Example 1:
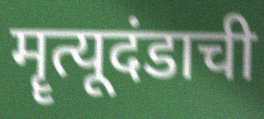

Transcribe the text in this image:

मॄत्यूदंडाची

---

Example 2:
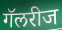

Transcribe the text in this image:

गॅलरीज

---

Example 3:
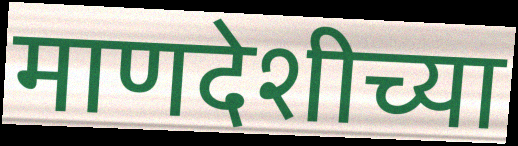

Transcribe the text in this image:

माणदेशीच्या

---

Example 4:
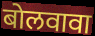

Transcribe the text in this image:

बोलवावा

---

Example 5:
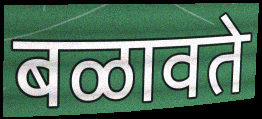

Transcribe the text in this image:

बळावते